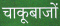
चाकूबाजों